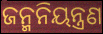
ଜନ୍ମନିୟନ୍ତ୍ରଣ